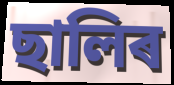
ছালিৰ